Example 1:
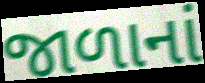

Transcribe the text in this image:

જાળાનાં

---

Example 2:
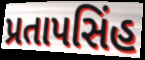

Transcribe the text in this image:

પ્રતાપસિંહ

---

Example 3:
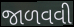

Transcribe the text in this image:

જાળવવી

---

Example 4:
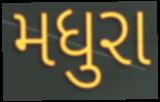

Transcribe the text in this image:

મધુરા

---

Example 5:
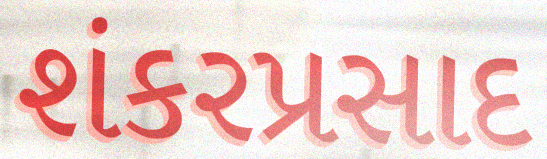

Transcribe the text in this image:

શંકરપ્રસાદ